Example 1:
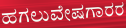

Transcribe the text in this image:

ಹಗಲುವೇಷಗಾರರ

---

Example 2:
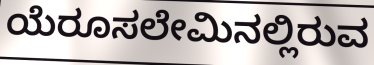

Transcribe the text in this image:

ಯೆರೂಸಲೇಮಿನಲ್ಲಿರುವ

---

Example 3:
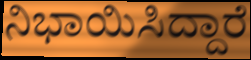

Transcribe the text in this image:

ನಿಭಾಯಿಸಿದ್ದಾರೆ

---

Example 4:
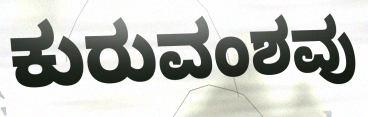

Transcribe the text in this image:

ಕುರುವಂಶವು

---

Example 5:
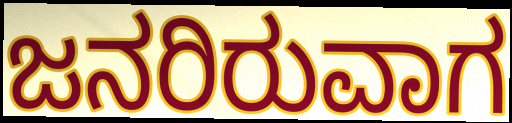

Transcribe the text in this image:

ಜನರಿರುವಾಗ